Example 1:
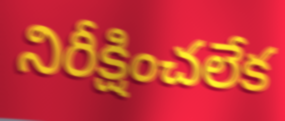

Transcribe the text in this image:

నిరీక్షించలేక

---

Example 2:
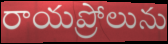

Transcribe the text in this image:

రాయప్రోలును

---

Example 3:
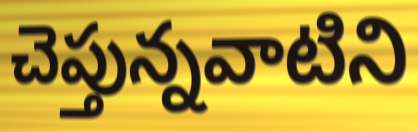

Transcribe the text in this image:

చెప్తున్నవాటిని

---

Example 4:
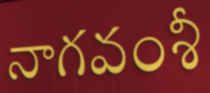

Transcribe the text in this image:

నాగవంశీ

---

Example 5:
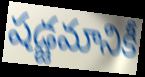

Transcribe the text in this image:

షడ్జమానికీ